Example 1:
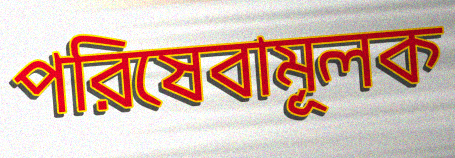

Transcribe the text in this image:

পরিষেবামূলক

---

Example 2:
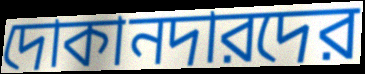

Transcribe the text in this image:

দোকানদারদের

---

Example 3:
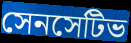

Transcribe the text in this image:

সেনসেটিভ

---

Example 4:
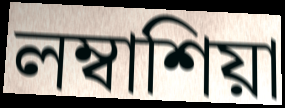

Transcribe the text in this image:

লম্বাশিয়া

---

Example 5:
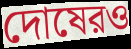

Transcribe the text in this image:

দোষেরও